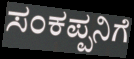
ಸಂಕಪ್ಪನಿಗೆ